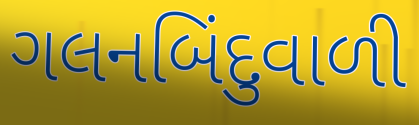
ગલનબિંદુવાળી